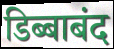
डिब्बाबंद